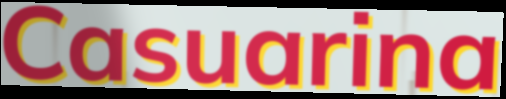
Casuarina